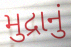
મુદ્રાનું